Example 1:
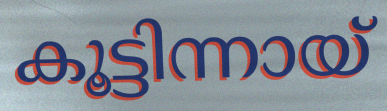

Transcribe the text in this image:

കൂട്ടിന്നായ്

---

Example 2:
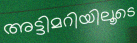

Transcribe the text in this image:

അട്ടിമറിയിലൂടെ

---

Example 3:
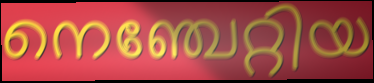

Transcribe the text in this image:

നെഞ്ചേറ്റിയ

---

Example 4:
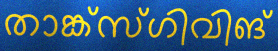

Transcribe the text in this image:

താങ്ക്സ്ഗിവിങ്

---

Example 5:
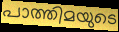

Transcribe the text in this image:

പാത്തിമയുടെ